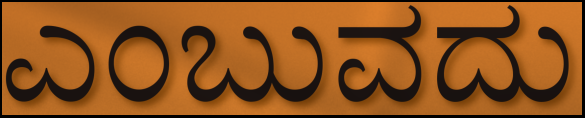
ಎಂಬುವದು